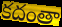
కదంతా